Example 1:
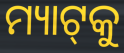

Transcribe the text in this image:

ମ୍ୟାଟ୍‌କୁ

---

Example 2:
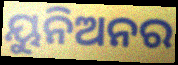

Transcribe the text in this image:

ୟୁନିଅନର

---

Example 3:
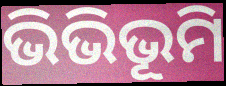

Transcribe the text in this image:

ଭିଭିଭୂମି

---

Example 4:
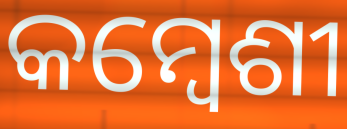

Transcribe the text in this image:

କମ୍ବେଶୀ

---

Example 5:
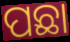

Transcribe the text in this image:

ପଛା